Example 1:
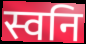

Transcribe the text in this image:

स्वनि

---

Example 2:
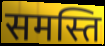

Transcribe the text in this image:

समस्ति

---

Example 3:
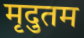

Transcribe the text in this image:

मृदुतम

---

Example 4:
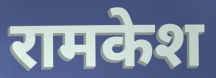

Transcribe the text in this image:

रामकेश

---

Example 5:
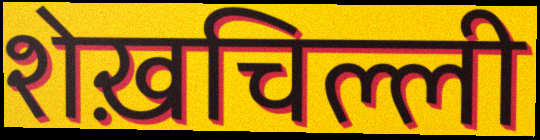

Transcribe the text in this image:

शेख़चिल्ली